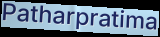
Patharpratima